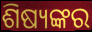
ଶିଷ୍ୟଙ୍କର